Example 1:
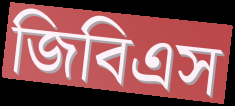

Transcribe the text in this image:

জিবিএস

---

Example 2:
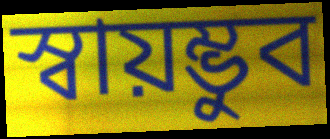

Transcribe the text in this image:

স্বায়ম্ভুব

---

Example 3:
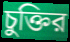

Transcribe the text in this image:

চুক্তির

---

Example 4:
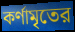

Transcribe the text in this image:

কর্ণামৃতের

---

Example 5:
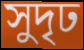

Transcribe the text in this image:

সুদৃঢ